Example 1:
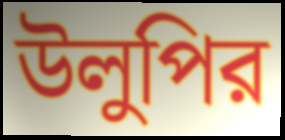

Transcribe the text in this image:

উলুপির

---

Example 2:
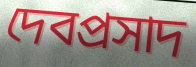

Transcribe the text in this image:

দেবপ্রসাদ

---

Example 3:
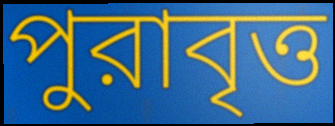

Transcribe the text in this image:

পুরাবৃত্ত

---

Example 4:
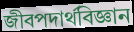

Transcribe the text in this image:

জীবপদার্থবিজ্ঞান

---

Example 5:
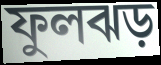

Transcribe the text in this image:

ফুলঝড়